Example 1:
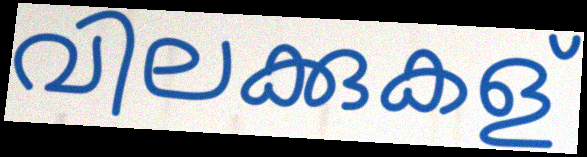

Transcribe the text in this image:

വിലക്കുകള്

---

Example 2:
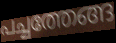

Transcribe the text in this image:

പച്ചത്തേങ്ങ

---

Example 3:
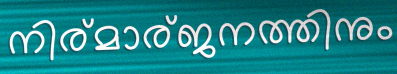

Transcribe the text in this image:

നിര്മാര്ജനത്തിനും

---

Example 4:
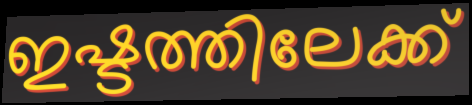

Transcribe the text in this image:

ഇഷ്ടത്തിലേക്ക്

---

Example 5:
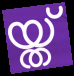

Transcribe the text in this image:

യ്ത്